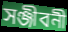
সঞ্জীবনী